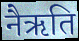
नैऋति